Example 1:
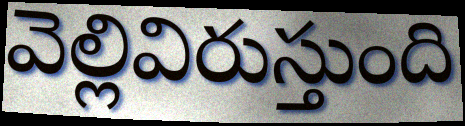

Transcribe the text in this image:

వెల్లివిరుస్తుంది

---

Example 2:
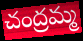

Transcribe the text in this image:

చంద్రమ్మ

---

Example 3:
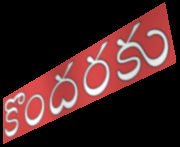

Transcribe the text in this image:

కొందరకు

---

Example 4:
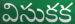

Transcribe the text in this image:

విసుకక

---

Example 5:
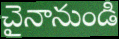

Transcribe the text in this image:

చైనానుండి